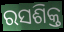
ରସଶିକ୍ତ